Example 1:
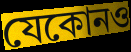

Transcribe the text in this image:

যেকোনও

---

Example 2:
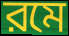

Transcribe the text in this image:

রমে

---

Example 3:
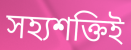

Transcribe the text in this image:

সহ্যশক্তিই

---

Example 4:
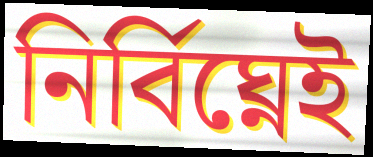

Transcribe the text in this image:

নির্বিঘ্নেই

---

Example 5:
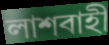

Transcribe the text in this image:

লাশবাহী